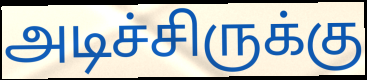
அடிச்சிருக்கு